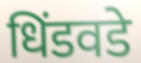
धिंडवडे